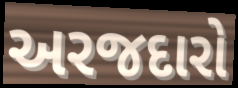
અરજદારો